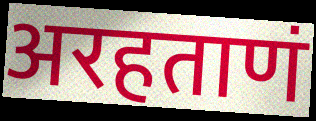
अरहताणं